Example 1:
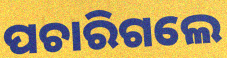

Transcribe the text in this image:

ପଚାରିଗଲେ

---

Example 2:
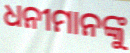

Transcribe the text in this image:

ଧନୀମାନଙ୍କୁ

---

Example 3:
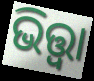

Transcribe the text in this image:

ଭିତ୍ତ୍ୱା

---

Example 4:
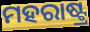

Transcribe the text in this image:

ମହରାଷ୍ଟ୍ର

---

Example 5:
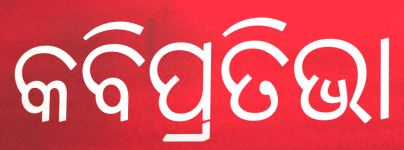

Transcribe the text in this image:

କବିପ୍ରତିଭା